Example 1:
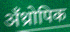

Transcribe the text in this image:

अँथ्रोपिक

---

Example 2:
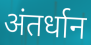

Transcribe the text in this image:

अंतर्धान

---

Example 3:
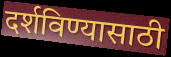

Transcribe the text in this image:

दर्शविण्यासाठी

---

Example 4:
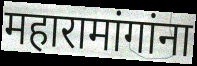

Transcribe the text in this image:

महारामांगांना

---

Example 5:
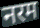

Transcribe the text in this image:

नरम